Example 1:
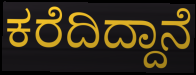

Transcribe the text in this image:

ಕರೆದಿದ್ದಾನೆ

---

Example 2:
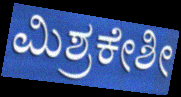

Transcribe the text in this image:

ಮಿಶ್ರಕೇಶೀ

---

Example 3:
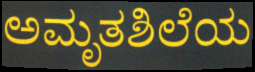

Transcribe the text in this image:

ಅಮೃತಶಿಲೆಯ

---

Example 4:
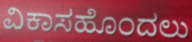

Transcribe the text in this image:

ವಿಕಾಸಹೊಂದಲು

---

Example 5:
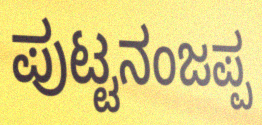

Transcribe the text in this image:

ಪುಟ್ಟನಂಜಪ್ಪ